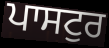
ਪਾਸਟੁਰ